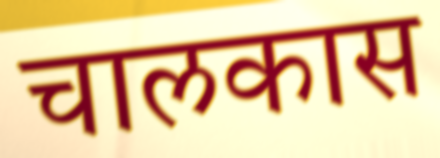
चालकास